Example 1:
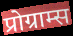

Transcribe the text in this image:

प्रोग्राम्‍स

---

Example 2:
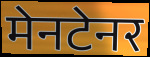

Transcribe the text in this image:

मेनटेनर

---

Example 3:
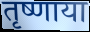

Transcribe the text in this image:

तृष्णाया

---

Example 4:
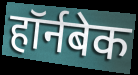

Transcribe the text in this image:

हॉर्नबेक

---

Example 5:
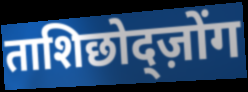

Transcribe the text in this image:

ताशिछोद्ज़ोंग